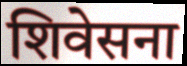
शिवेसना